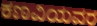
ಕಣವಿಯವರ